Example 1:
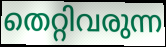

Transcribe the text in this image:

തെറ്റിവരുന്ന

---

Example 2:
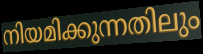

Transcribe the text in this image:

നിയമിക്കുന്നതിലും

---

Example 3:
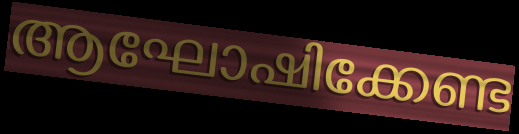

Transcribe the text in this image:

ആഘോഷിക്കേണ്ട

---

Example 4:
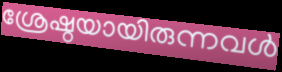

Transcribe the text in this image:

ശ്രേഷ്ഠയായിരുന്നവൾ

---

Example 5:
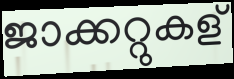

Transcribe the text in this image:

ജാക്കറ്റുകള്